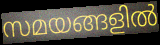
സമയങ്ങളിൽ